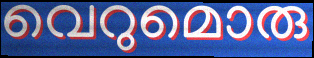
വെറുമൊരു